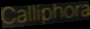
Calliphora